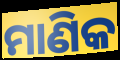
ମାଣିକ